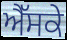
ਐੱਸਕੇ